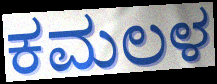
ಕಮಲಳ